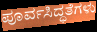
ಪೂರ್ವಸಿದ್ಧತೆಗಳು